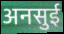
अनसुई